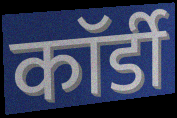
कॉर्डी